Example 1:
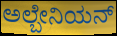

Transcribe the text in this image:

ಅಲ್ಬೇನಿಯನ್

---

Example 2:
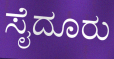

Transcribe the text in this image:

ಸೈದೂರು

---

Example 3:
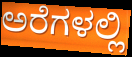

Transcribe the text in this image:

ಅರೆಗಳಲ್ಲಿ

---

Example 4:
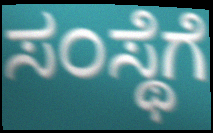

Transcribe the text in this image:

ಸಂಸ್ಥೆಗೆ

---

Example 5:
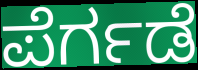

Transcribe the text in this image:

ಪೆರ್ಗಡೆ